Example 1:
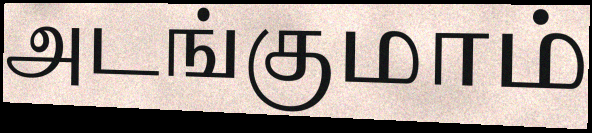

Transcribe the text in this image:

அடங்குமாம்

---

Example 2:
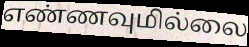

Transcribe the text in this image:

எண்ணவுமில்லை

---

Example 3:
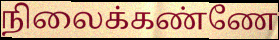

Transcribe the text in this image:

நிலைக்கண்ணே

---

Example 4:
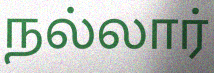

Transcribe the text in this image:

நல்லார்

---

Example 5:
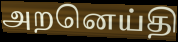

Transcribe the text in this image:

அறனெய்தி